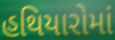
હથિયારોમાં